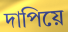
দাপিয়ে